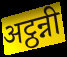
अट्ठन्नी